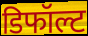
डिफॉल्ट